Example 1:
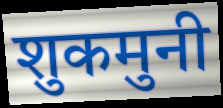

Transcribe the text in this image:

शुकमुनी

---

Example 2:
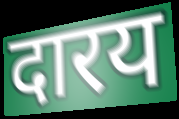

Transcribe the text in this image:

दारय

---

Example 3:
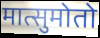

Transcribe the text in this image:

मात्सुमोतो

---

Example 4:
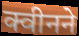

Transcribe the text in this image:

क्वीनने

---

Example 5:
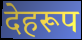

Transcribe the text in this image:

देहरूप